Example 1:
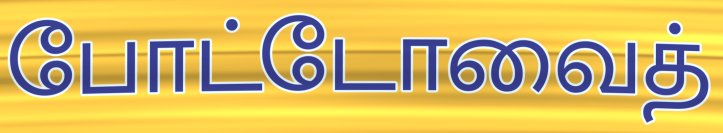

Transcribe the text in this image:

போட்டோவைத்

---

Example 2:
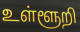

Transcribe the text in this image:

உள்ளூறி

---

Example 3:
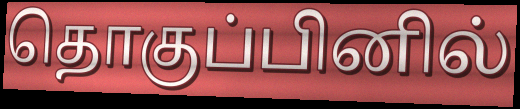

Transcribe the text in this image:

தொகுப்பினில்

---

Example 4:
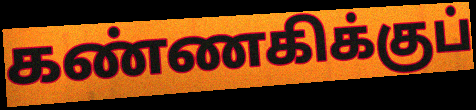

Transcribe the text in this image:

கண்ணகிக்குப்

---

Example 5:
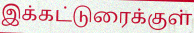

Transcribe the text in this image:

இக்கட்டுரைக்குள்